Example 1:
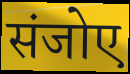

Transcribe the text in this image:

संजोए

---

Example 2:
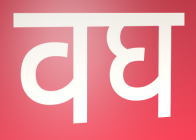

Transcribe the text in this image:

वघ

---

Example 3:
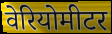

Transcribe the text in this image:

वेरियोमीटर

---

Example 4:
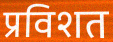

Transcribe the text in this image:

प्रविशत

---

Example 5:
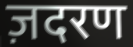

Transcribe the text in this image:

ज़दरण